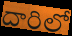
దారిలో